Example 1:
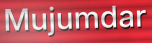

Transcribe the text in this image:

Mujumdar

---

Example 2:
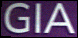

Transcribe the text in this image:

GIA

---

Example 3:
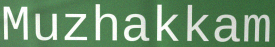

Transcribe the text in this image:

Muzhakkam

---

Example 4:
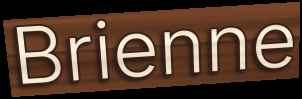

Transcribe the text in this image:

Brienne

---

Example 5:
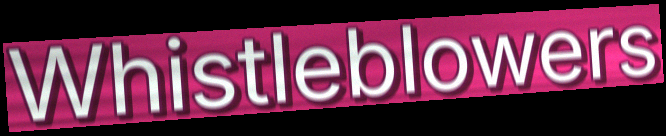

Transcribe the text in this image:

Whistleblowers